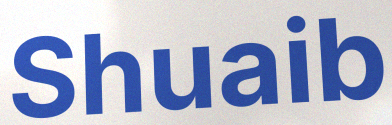
Shuaib